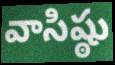
వాసిష్ఠు